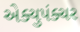
એક્યુપંક્ચર